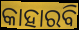
କାହାରବି